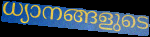
ധ്യാനങ്ങളുടെ